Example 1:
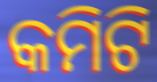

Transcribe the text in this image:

କମିଟି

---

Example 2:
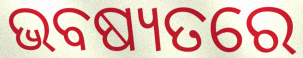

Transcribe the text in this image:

ଭବଷ୍ୟତରେ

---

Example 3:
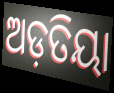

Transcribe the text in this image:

ଅଡ଼ତିୟା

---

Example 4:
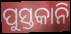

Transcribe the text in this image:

ପୁସ୍ତକାନି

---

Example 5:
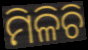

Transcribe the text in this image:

ମିଳିଚି